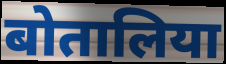
बोतालिया